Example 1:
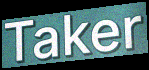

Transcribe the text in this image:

Taker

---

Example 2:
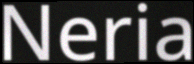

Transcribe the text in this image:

Neria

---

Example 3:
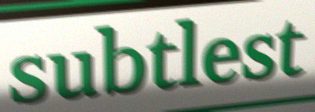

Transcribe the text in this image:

subtlest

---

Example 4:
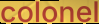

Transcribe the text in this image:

colonel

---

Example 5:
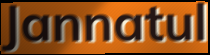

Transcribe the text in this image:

Jannatul